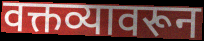
वक्तव्यावरून